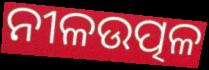
ନୀଳଉତ୍ପଳ